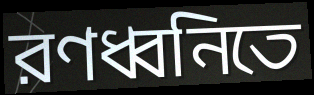
রণধ্বনিতে